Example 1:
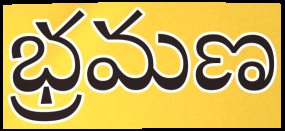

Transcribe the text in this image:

భ్రమణ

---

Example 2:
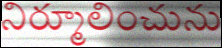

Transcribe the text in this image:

నిర్మూలించును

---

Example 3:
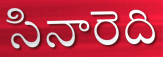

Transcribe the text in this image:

సినారెది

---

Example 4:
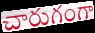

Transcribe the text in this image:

చారుగంగా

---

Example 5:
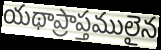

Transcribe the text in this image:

యథాప్రాప్తములైన